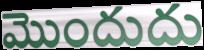
మొందుదు